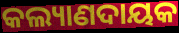
କଲ୍ୟାଣଦାୟକ